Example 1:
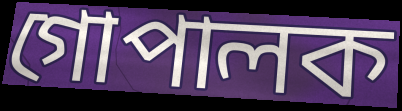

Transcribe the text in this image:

গোপালক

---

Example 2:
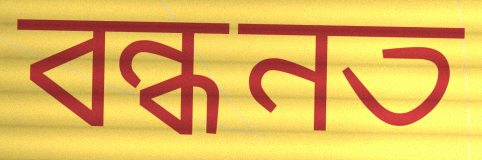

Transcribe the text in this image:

বন্ধনত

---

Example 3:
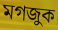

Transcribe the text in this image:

মগজুক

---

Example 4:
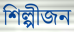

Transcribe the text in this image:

শিল্পীজন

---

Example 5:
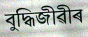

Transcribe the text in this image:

বুদ্ধিজীৱীৰ